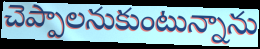
చెప్పాలనుకుంటున్నాను